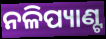
ନଳିପ୍ୟାଣ୍ଟ